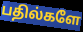
பதில்களே